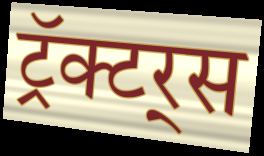
ट्रॅक्टर्स